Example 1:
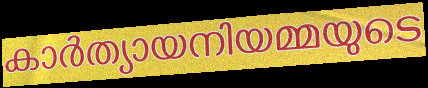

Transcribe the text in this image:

കാർത്യായനിയമ്മയുടെ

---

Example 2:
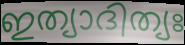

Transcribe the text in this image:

ഇത്യാദിത്യഃ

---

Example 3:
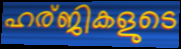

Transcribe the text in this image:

ഹര്ജികളുടെ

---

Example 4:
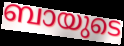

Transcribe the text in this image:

ബായുടെ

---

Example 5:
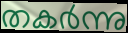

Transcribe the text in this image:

തകർന്നു